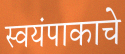
स्वयंपाकाचे